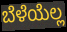
ಬೆಳೆಯೆಲ್ಲ